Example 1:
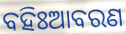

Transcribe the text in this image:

ବହିଃଆବରଣ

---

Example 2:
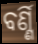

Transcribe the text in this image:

ବର୍ଣ୍ଣି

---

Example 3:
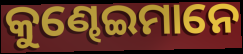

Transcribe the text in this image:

କୁଣ୍ଢେଇମାନେ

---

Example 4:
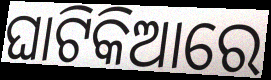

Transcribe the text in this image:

ଘାଟିକିଆରେ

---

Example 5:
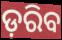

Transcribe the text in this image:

ଡ଼ରିବ